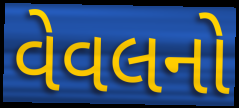
વેવલનો